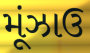
મૂંઝાઉ